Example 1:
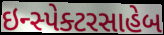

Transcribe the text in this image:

ઇન્સ્પેક્ટરસાહેબ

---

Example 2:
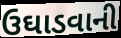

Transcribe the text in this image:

ઉઘાડવાની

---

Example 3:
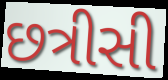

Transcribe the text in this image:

છત્રીસી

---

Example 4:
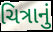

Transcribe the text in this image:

ચિત્રાનું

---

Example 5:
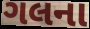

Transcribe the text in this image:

ગલના